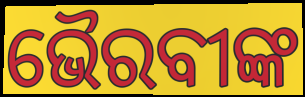
ଭୈରବୀଙ୍କ